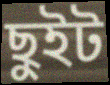
ছুইট